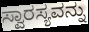
ಸ್ವಾರಸ್ಯವನ್ನು